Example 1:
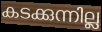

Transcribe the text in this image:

കടക്കുന്നില്ല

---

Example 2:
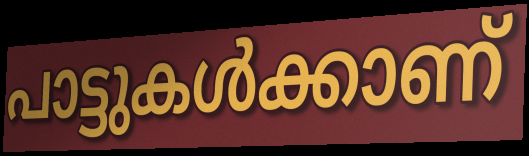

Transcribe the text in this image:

പാട്ടുകൾക്കാണ്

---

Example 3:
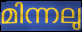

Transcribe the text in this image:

മിന്നലു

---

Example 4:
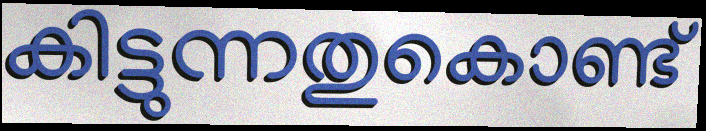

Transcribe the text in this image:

കിട്ടുന്നതുകൊണ്ട്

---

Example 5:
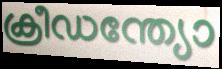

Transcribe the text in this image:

ക്രീഡന്ത്യോ